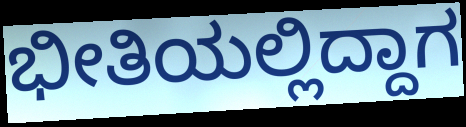
ಭೀತಿಯಲ್ಲಿದ್ದಾಗ